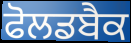
ਫੋਲਡਬੈਕ